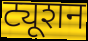
ट्यूशन